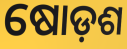
ଷୋଡ଼ଶ